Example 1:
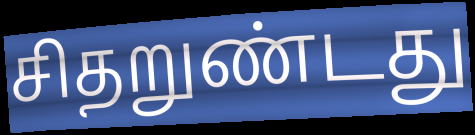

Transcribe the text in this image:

சிதறுண்டது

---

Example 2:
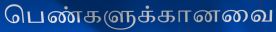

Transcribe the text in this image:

பெண்களுக்கானவை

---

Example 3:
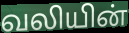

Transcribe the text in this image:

வலியின்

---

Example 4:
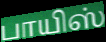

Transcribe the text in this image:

பாயிஸ்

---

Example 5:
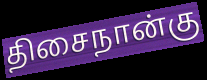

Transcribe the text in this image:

திசைநான்கு